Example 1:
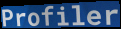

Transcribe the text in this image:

Profiler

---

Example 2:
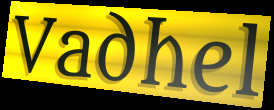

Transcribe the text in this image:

Vadhel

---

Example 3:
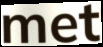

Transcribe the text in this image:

met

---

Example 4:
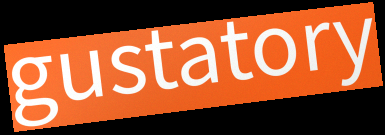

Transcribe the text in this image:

gustatory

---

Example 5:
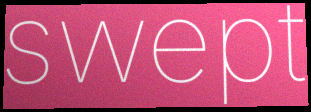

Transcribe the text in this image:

swept